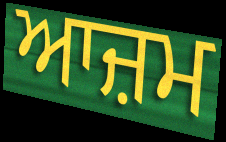
ਆਜ਼ਮ